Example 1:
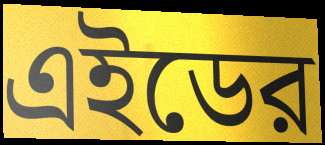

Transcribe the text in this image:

এইডের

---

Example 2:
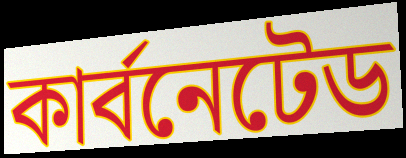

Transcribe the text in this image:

কার্বনেটেড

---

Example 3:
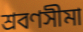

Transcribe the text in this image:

শ্রবণসীমা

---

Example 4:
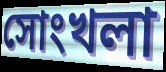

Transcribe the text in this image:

সোংখলা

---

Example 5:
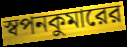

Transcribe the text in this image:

স্বপনকুমারের